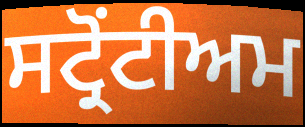
ਸਟ੍ਰੋਂਟੀਅਮ